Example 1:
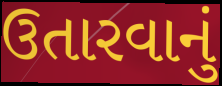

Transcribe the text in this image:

ઉતારવાનું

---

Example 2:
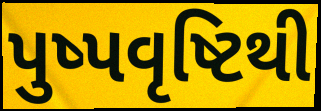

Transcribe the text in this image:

પુષ્પવૃષ્ટિથી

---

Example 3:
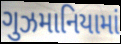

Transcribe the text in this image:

ગુઝમાનિયામાં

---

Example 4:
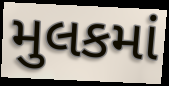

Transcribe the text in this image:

મુલકમાં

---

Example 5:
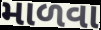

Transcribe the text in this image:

માળવા